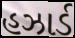
હઝાર્ડ